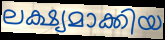
ലക്ഷ്യമാക്കിയ